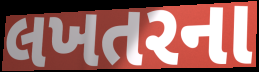
લખતરના